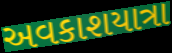
અવકાશયાત્રા